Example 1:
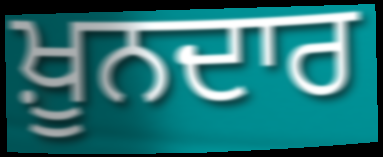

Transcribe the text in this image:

ਖ਼ੂਨਦਾਰ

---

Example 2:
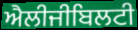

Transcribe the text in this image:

ਐਲੀਜੀਬਿਲਟੀ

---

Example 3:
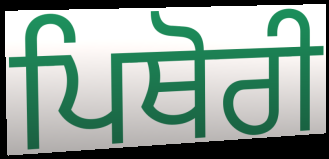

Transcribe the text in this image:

ਪਿਥੋਰੀ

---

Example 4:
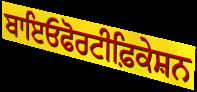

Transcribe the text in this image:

ਬਾਇਓਫੋਰਟੀਫ਼ਿਕੇਸ਼ਨ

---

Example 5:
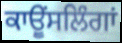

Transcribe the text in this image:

ਕਾਊਂਸਲਿੰਗਾਂ